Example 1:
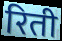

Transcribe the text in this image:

रिती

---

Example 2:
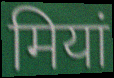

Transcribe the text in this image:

मियां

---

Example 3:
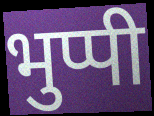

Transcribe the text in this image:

भुप्पी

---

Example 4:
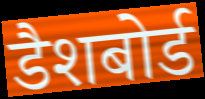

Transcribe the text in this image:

डैशबोर्ड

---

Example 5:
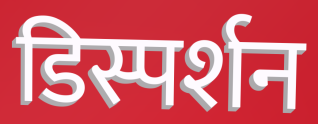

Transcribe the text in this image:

डिस्पर्शन